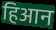
हिआन